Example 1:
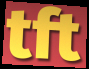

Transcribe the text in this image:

tft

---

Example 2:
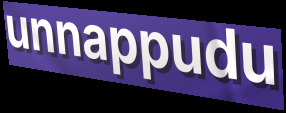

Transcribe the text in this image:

unnappudu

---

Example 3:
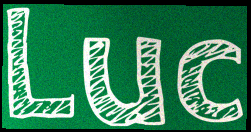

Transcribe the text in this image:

Luc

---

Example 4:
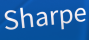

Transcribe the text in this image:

Sharpe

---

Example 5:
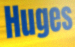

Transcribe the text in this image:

Huges